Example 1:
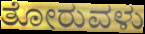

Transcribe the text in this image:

ತೋರುವಳು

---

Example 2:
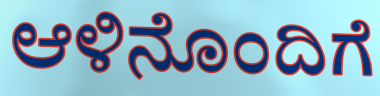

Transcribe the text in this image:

ಆಳಿನೊಂದಿಗೆ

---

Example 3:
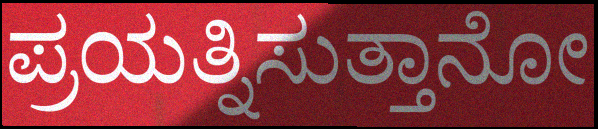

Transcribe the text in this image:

ಪ್ರಯತ್ನಿಸುತ್ತಾನೋ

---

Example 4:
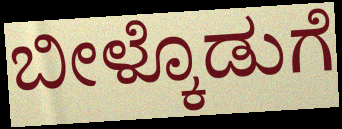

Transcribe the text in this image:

ಬೀಳ್ಕೊಡುಗೆ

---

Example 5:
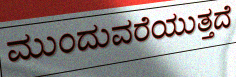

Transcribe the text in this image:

ಮುಂದುವರೆಯುತ್ತದೆ